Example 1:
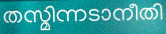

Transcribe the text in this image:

തസ്മിന്നടാനീതി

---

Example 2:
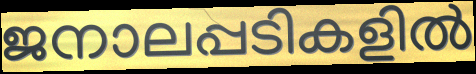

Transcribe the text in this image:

ജനാലപ്പടികളിൽ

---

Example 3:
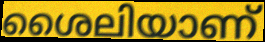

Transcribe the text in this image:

ശൈലിയാണ്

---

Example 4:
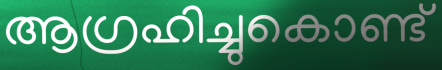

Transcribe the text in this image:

ആഗ്രഹിച്ചുകൊണ്ട്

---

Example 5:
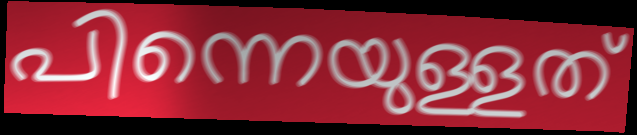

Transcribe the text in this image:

പിന്നെയുള്ളത്